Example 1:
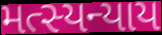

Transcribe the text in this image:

મત્સ્યન્યાય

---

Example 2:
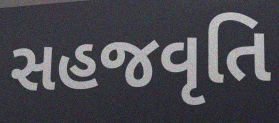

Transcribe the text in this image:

સહજવૃતિ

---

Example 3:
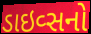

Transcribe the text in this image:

ડાઇવ્સનો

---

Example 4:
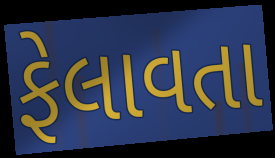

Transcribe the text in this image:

ફેલાવતા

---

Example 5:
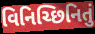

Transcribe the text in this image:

વિનિચ્છિનિતું